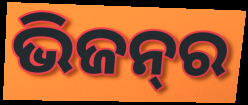
ଭିଜନ୍‌ର